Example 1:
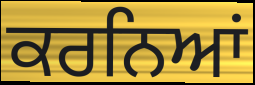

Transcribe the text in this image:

ਕਰਨਿਆਂ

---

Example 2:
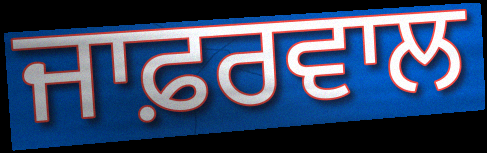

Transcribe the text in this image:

ਜਾਫ਼ਰਵਾਲ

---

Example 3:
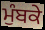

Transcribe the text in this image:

ਮੁੰਬਕੇ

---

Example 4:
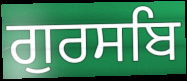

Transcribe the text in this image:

ਗੁਰਸਬਿ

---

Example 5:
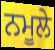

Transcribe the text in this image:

ਨਮੂਲੇ